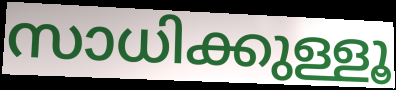
സാധിക്കുള്ളൂ